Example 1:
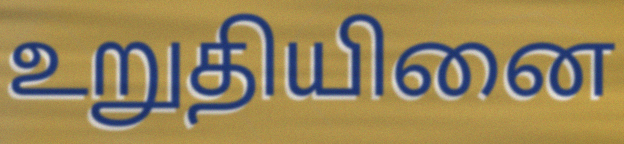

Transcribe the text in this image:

உறுதியினை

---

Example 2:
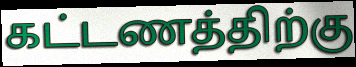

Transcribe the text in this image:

கட்டணத்திற்கு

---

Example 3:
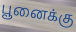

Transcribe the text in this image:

பூனைக்கு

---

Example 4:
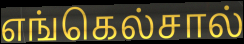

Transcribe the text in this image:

எங்கெல்சால்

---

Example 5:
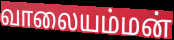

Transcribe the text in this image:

வாலையம்மன்